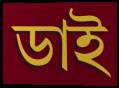
ডাই